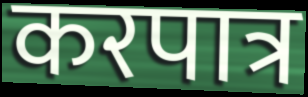
करपात्र